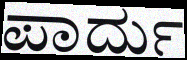
ಪಾರ್ದು